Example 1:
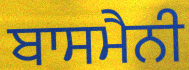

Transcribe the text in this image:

ਬਾਸਮੈਨੀ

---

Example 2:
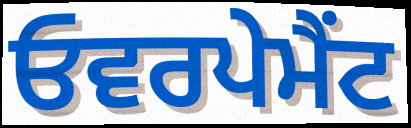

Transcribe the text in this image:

ਓਵਰਪੇਮੈਂਟ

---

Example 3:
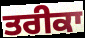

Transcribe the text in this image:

ਤਰੀਕਾ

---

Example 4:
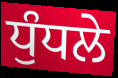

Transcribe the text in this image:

ਧੁੰਧਲੇ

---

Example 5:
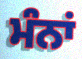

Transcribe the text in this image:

ਮੰਨਾਂ